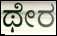
ಥೇರ